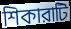
শিকারাটি